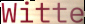
Witte